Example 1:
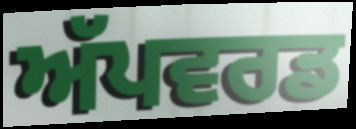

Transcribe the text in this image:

ਅੱਪਵਰਡ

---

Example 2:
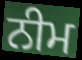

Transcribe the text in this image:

ਨੀਮ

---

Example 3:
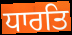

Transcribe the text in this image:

ਧਾਰਤਿ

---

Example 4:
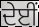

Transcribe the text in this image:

ਦੇਈਂ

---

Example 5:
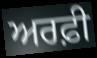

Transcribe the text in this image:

ਅਰਫ਼ੀ